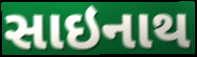
સાઇનાથ